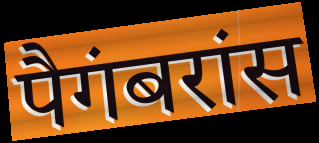
पैगंबरांस